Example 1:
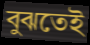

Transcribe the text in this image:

বুঝতেই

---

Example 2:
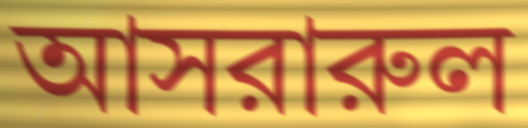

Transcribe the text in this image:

আসরারুল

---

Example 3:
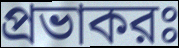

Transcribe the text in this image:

প্রভাকরঃ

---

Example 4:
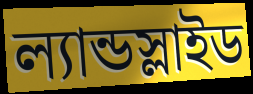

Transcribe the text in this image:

ল্যান্ডস্লাইড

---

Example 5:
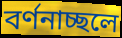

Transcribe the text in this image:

বর্ণনাচ্ছলে